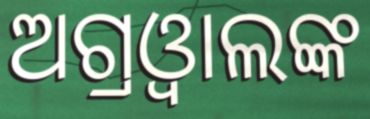
ଅଗ୍ରଓ୍ବାଲଙ୍କ